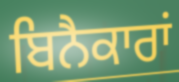
ਬਿਨੈਕਾਰਾਂ